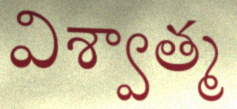
విశ్వాత్మ